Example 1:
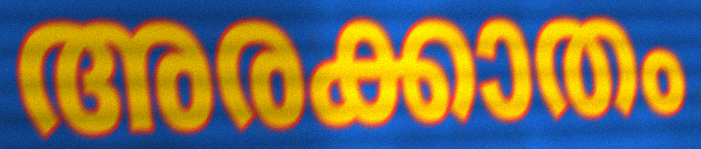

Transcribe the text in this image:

അരക്കാതം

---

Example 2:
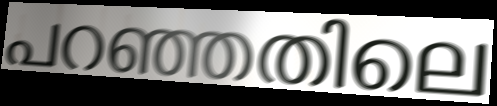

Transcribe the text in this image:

പറഞ്ഞതിലെ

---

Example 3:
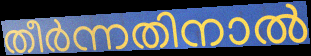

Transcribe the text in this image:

തീർന്നതിനാൽ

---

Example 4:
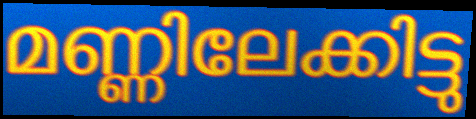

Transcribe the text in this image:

മണ്ണിലേക്കിട്ടു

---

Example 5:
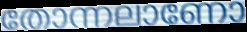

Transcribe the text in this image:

തോന്നലാണോ